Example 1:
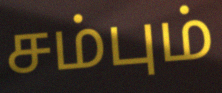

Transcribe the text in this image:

சம்பும்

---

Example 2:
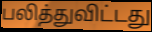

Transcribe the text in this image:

பலித்துவிட்டது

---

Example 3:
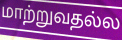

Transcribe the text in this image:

மாற்றுவதல்ல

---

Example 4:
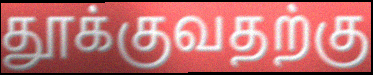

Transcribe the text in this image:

தூக்குவதற்கு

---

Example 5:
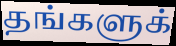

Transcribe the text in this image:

தங்களுக்